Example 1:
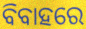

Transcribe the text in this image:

ବିବାହରେ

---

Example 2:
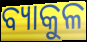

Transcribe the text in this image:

ବ୍ୟାକୁଳ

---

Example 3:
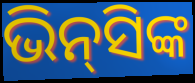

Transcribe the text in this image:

ଭିନ୍‍ସିଙ୍କ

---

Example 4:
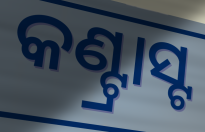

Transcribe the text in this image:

କଣ୍ଟ୍ରାସ୍ଟ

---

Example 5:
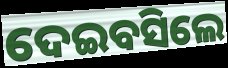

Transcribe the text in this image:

ଦେଇବସିଲେ